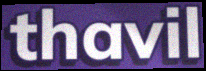
thavil